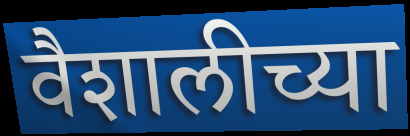
वैशालीच्या